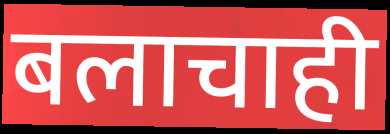
बलाचाही